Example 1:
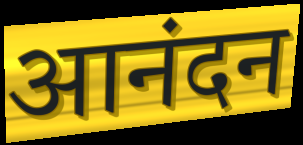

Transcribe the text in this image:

आनंदन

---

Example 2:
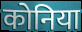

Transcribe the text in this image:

कोनिया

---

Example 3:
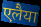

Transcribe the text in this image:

एलैया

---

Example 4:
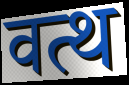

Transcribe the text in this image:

वत्थ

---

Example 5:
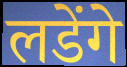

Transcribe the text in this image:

लडेंगे